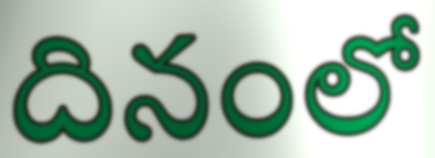
దినంలో